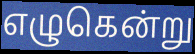
எழுகென்று